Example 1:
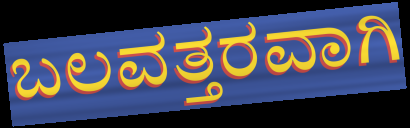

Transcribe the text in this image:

ಬಲವತ್ತರವಾಗಿ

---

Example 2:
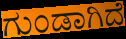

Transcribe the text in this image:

ಗುಂಡಾಗಿದೆ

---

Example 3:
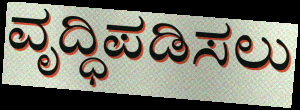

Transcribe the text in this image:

ವೃದ್ಧಿಪಡಿಸಲು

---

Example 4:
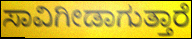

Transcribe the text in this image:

ಸಾವಿಗೀಡಾಗುತ್ತಾರೆ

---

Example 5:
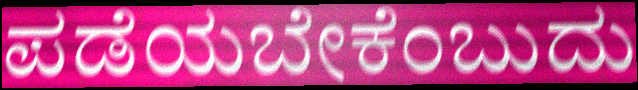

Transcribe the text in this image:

ಪಡೆಯಬೇಕೆಂಬುದು